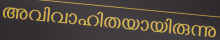
അവിവാഹിതയായിരുന്നു